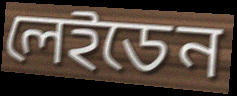
লেইডেন